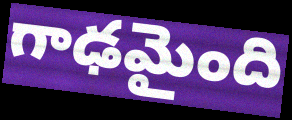
గాఢమైంది